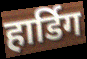
हार्डिग